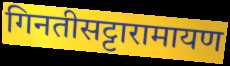
गिनतीसट्टारामायण